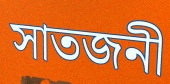
সাতজনী